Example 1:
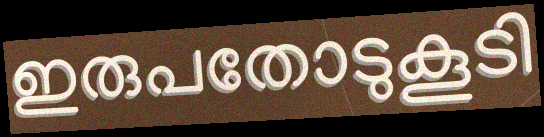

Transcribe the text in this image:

ഇരുപതോടുകൂടി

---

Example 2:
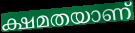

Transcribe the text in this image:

ക്ഷമതയാണ്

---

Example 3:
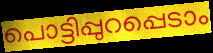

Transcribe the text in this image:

പൊട്ടിപ്പുറപ്പെടാം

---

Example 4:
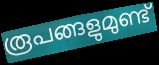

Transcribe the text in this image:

രൂപങ്ങളുമുണ്ട്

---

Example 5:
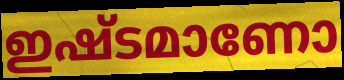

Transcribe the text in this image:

ഇഷ്ടമാണോ